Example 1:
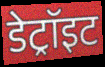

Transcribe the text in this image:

डेट्रॉइट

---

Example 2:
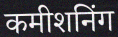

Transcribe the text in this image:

कमीशनिंग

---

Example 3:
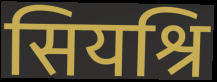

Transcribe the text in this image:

सियश्रि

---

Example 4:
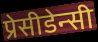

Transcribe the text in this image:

प्रेसीडेन्सी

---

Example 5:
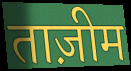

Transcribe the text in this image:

ताज़ीम